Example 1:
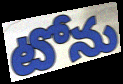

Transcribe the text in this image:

టోను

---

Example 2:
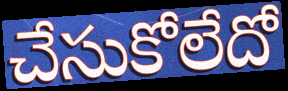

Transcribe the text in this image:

చేసుకోలేదో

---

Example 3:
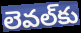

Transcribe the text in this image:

లెవల్‌కు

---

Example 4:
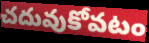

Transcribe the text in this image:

చదువుకోవటం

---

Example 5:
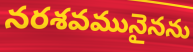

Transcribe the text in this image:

నరశవమునైనను